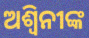
ଅଶ୍ୱିନୀଙ୍କ